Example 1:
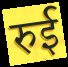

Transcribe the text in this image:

रुई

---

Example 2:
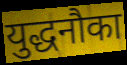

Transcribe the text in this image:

युद्धनौका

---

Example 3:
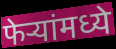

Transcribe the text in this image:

फेऱ्यांमध्ये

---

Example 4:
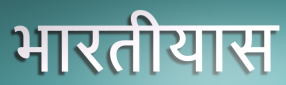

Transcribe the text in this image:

भारतीयास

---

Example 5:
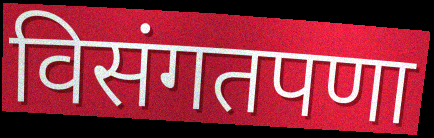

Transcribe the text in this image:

विसंगतपणा